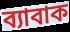
ব্যাবাক